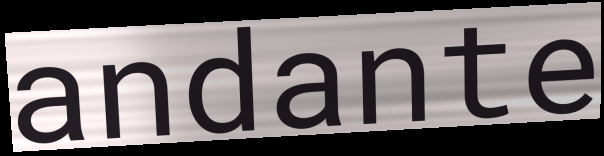
andante